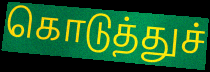
கொடுத்துச்